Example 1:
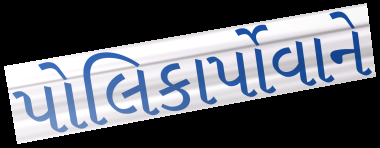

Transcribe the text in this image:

પોલિકાર્પોવાને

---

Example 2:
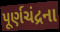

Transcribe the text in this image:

પૂર્ણચંદ્રના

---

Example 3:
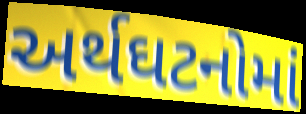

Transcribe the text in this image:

અર્થઘટનોમાં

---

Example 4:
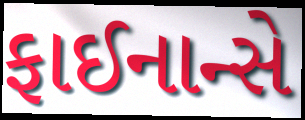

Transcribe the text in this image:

ફાઈનાન્સે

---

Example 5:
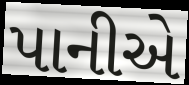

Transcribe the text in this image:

પાનીએ